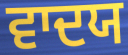
ਵਾਦਯ